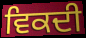
ਵਿਕਦੀ